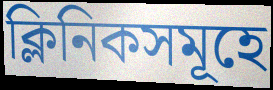
ক্লিনিকসমূহে